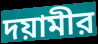
দয়ামীর